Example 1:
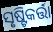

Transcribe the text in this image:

ସୃଷ୍ଟିକର୍ତ୍ତା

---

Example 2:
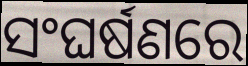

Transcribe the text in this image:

ସଂଘର୍ଷଣରେ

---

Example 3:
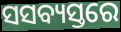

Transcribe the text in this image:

ସସବ୍ୟସ୍ତରେ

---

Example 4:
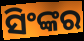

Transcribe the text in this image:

ସିଂଙ୍କର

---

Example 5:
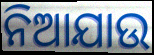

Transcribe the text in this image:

ନିଆଯାଉ